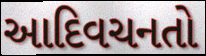
આદિવચનતો